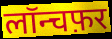
लॉन्चफ़र